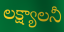
లక్ష్యాలనీ